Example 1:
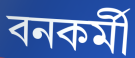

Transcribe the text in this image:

বনকর্মী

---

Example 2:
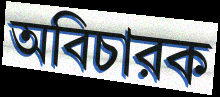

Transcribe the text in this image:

অবিচারক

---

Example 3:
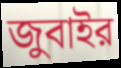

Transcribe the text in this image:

জুবাইর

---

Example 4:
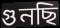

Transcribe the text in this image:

গুনছি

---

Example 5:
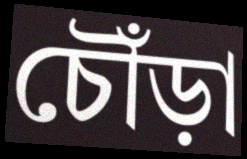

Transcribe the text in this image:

চৌঁড়া